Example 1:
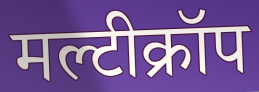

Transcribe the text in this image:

मल्टीक्रॉप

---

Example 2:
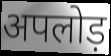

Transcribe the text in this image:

अपलोड़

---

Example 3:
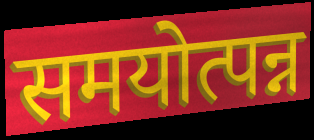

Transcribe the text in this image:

समयोत्पन्न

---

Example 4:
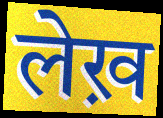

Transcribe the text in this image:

लेख़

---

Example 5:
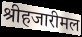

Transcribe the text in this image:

श्रीहजारीमल